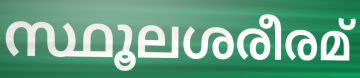
സ്ഥൂലശരീരമ്